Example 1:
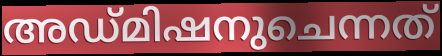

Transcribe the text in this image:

അഡ്മിഷനുചെന്നത്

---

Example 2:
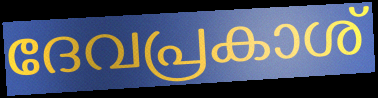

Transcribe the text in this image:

ദേവപ്രകാശ്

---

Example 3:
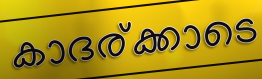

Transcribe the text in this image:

കാദര്ക്കാടെ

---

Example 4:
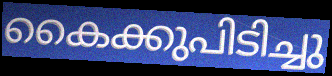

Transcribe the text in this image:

കൈക്കുപിടിച്ചു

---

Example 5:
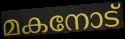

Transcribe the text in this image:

മകനോട്